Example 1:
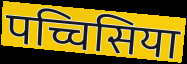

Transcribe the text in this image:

पच्चिसिया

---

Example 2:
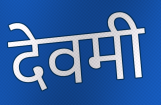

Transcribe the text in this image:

देवमी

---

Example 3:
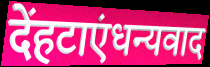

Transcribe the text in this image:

देंहटाएंधन्यवाद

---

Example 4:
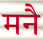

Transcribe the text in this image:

मनै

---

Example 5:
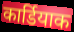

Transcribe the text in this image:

कार्डियाक